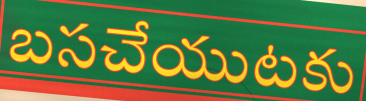
బసచేయుటకు